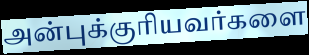
அன்புக்குரியவர்களை